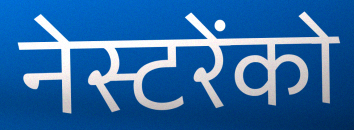
नेस्टरेंको